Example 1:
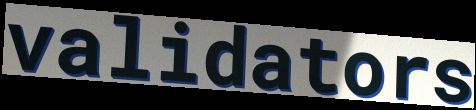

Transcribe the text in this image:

validators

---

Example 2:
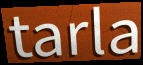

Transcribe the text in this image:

tarla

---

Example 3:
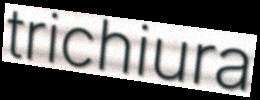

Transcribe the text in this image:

trichiura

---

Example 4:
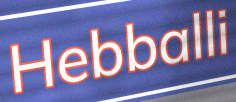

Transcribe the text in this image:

Hebballi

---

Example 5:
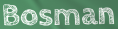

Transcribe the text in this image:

Bosman